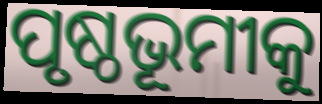
ପୃଷ୍ଠଭୂମୀକୁ